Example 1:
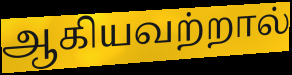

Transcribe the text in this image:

ஆகியவற்றால்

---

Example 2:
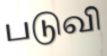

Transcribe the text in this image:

படுவி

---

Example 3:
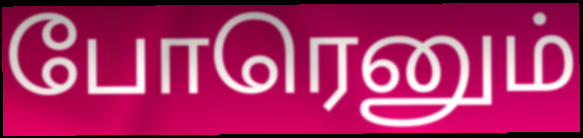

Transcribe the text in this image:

போரெனும்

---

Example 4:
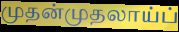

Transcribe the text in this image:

முதன்முதலாய்ப்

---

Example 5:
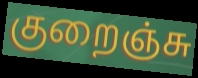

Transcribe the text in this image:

குறைஞ்சு